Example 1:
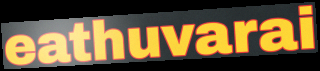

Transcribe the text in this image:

eathuvarai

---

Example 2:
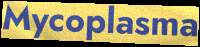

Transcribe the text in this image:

Mycoplasma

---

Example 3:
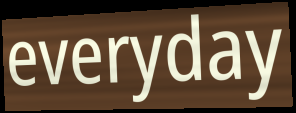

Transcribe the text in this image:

everyday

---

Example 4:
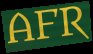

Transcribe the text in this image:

AFR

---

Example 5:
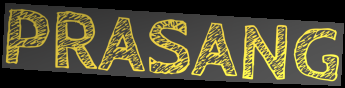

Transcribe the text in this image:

PRASANG